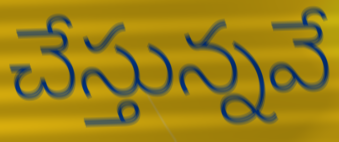
చేస్తున్నవే